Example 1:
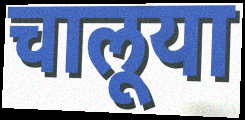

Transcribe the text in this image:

चालूया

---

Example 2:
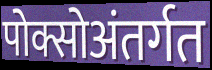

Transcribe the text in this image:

पोक्सोअंतर्गत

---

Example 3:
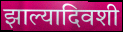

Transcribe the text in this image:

झाल्यादिवशी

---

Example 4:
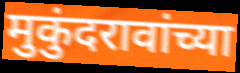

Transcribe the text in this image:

मुकुंदरावांच्या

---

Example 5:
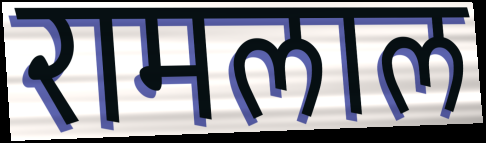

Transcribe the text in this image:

रामलाल